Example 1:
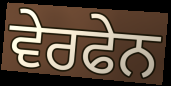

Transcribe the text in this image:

ਵੇਰਫੇਨ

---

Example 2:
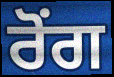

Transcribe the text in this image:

ਰੋਂਗ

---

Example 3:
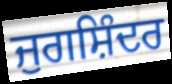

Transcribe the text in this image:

ਜੁਗਸ਼ਿੰਦਰ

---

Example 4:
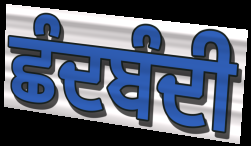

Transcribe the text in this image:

ਛੰਦਬੰਦੀ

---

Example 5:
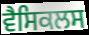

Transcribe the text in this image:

ਵੈਸਿਕਲਸ